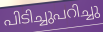
പിടിച്ചുപറിച്ചു